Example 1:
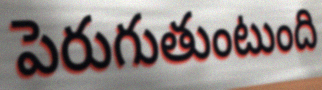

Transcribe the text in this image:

పెరుగుతుంటుంది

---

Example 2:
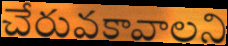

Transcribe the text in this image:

చేరువకావాలని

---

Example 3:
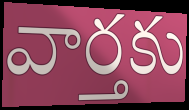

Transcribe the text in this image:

వార్తకు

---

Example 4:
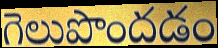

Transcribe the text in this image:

గెలుపొందడం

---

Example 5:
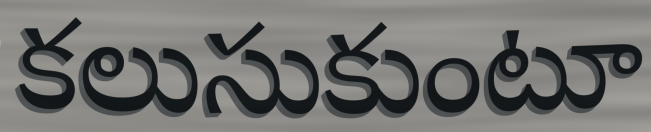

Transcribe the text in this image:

కలుసుకుంటూ